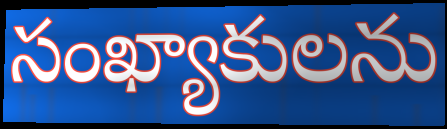
సంఖ్యాకులను